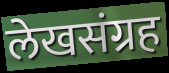
लेखसंग्रह